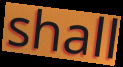
shall